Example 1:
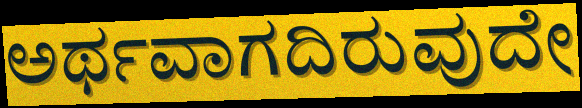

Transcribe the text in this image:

ಅರ್ಥವಾಗದಿರುವುದೇ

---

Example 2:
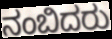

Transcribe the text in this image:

ನಂಬಿದರು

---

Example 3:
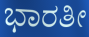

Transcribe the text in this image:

ಭಾರತೀ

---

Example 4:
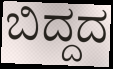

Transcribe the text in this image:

ಬಿದ್ದದ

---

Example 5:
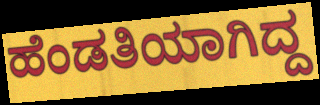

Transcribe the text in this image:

ಹೆಂಡತಿಯಾಗಿದ್ದ